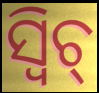
ସ୍ଵିଚ୍